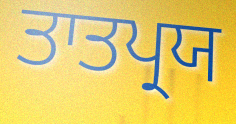
ਤਾਤਪ੍ਰਯ